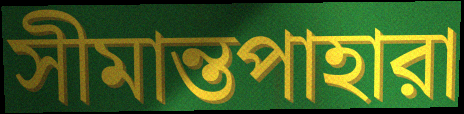
সীমান্তপাহারা